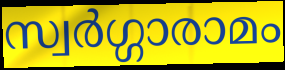
സ്വർഗ്ഗാരാമം